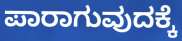
ಪಾರಾಗುವುದಕ್ಕೆ